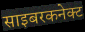
साइबरकनेक्ट